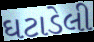
ઘટાડેલી